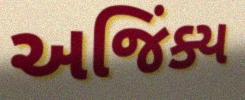
અજિંક્ય